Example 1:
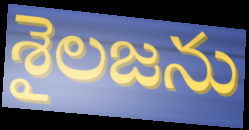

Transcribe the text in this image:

శైలజను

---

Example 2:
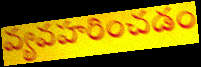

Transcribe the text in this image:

వ్యవహరించడం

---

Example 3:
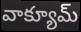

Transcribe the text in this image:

వాక్యూమ్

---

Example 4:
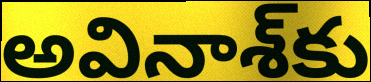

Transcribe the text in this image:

అవినాశ్‌కు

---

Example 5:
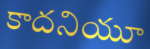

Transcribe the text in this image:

కాదనియూ